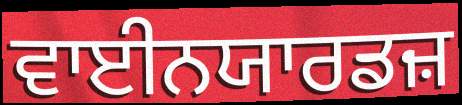
ਵਾਈਨਯਾਰਡਜ਼